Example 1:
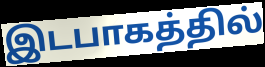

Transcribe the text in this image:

இடபாகத்தில்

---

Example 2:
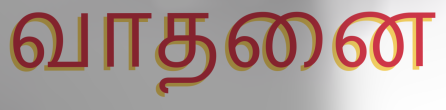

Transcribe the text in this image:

வாதனை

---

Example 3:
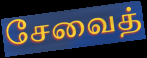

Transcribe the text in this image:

சேவைத்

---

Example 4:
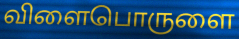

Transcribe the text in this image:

விளைபொருளை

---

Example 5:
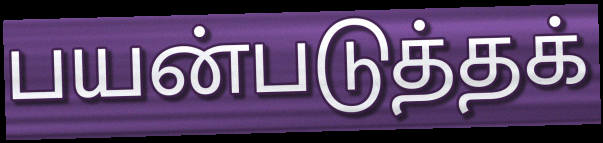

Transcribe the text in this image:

பயன்படுத்தக்